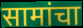
सामांचा